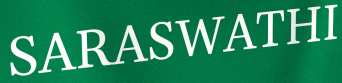
SARASWATHI